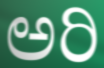
ಅರಿ